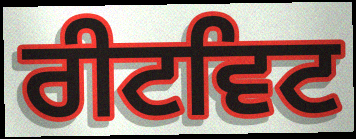
ਰੀਟਵਿਟ